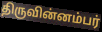
திருவின்னம்பர்